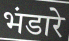
भंडारे